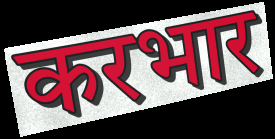
करभार